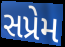
સપ્રેમ